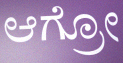
ಆಗ್ರೋ